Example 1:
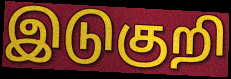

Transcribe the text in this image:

இடுகுறி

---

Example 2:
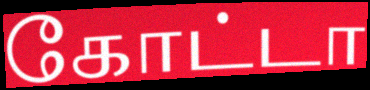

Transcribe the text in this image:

கோட்டா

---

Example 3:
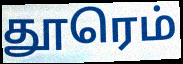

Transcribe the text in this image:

தூரெம்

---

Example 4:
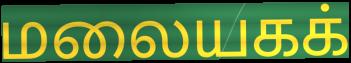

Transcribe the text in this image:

மலையகக்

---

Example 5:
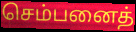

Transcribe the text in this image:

செம்பனைத்